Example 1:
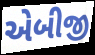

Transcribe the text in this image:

એબીજી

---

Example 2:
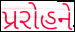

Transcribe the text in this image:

પ્રરોહને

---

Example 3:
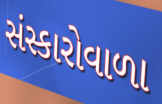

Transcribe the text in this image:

સંસ્કારોવાળા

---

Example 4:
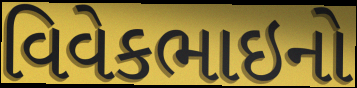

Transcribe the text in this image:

વિવેકભાઇનો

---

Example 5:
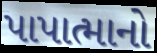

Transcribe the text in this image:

પાપાત્માનો